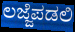
ಲಜ್ಜೆಪಡಲಿ